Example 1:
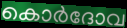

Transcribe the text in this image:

കൊർദോവ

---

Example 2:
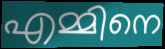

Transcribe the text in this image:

എമ്മിനെ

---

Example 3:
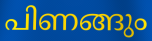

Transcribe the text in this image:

പിണങ്ങും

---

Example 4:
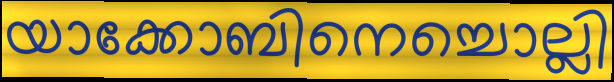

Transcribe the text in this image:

യാക്കോബിനെച്ചൊല്ലി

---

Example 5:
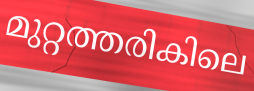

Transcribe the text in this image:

മുറ്റത്തരികിലെ